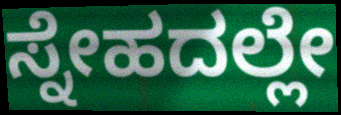
ಸ್ನೇಹದಲ್ಲೇ